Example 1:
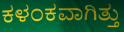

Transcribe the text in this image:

ಕಳಂಕವಾಗಿತ್ತು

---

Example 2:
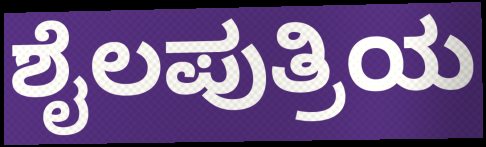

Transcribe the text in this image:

ಶೈಲಪುತ್ರಿಯ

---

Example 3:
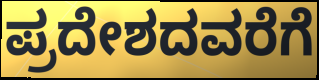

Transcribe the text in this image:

ಪ್ರದೇಶದವರೆಗೆ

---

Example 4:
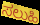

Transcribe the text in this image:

ಸಲುಹಿ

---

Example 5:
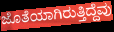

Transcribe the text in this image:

ಜೊತೆಯಾಗಿರುತ್ತಿದ್ದೆವು